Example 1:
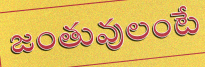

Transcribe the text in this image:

జంతువులంటే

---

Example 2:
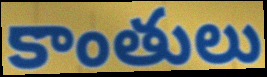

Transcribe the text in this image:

కాంతులు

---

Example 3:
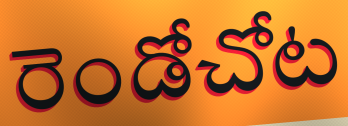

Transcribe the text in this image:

రెండోచోట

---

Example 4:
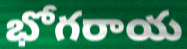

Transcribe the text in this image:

భోగరాయ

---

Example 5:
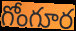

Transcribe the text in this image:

గోంగూర